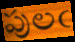
పులఁ